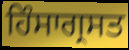
ਹਿੰਸਾਗ੍ਰਸਤ